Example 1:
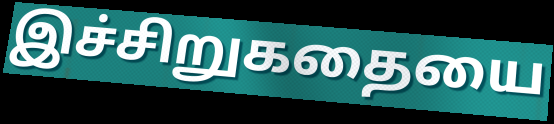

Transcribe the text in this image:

இச்சிறுகதையை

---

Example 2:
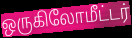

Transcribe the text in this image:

ஒருகிலோமீட்டர்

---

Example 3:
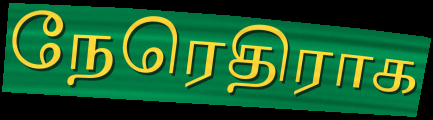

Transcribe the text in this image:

நேரெதிராக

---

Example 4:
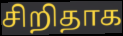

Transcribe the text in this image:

சிறிதாக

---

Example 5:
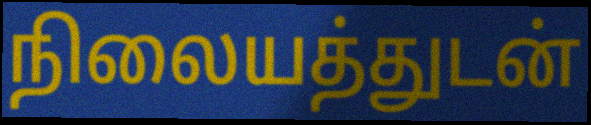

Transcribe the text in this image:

நிலையத்துடன்